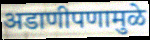
अडाणीपणामुळे